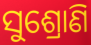
ସୁଶ୍ରୋଣି